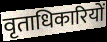
वृताधिकारियों